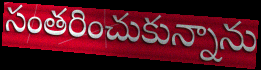
సంతరించుకున్నాను